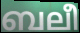
ബലീ